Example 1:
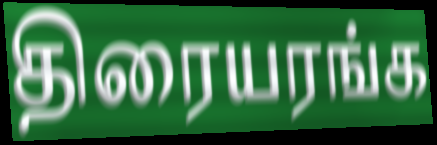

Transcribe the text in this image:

திரையரங்க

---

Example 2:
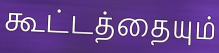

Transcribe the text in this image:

கூட்டத்தையும்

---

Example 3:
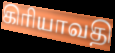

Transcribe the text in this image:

கிரியாவதி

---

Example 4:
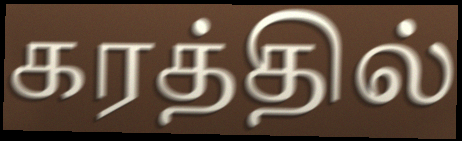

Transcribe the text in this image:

கரத்தில்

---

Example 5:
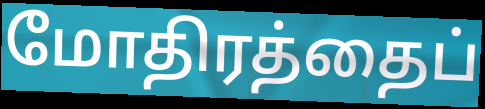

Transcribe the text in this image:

மோதிரத்தைப்